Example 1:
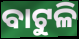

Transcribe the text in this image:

ବାଟୁଳି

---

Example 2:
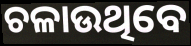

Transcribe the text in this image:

ଚଳାଉଥିବେ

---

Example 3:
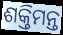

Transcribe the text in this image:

ଶକ୍ତିମନ୍ତ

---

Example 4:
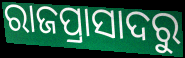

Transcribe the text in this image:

ରାଜପ୍ରାସାଦରୁ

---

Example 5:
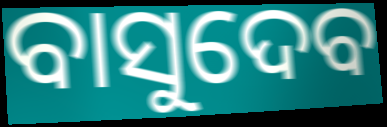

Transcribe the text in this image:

ବାସୁଦେବ